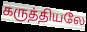
கருத்தியலே